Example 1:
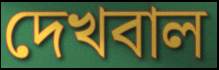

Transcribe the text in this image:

দেখবাল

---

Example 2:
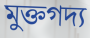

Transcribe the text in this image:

মুক্তগদ্য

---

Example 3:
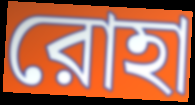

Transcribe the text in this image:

রোহা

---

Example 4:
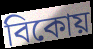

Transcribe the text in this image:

বিকোয়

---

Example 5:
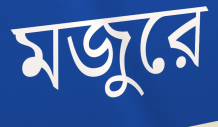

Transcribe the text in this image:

মজুরে